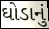
ઘોડાનું